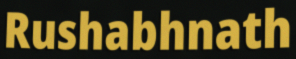
Rushabhnath